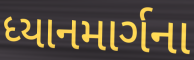
ધ્યાનમાર્ગના